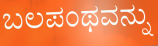
ಬಲಪಂಥವನ್ನು